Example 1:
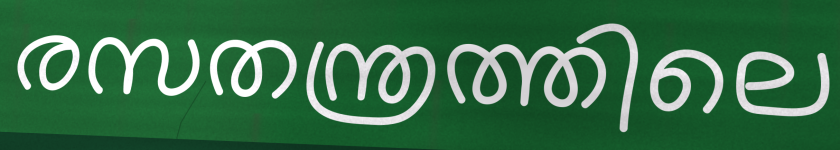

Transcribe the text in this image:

രസതന്ത്രത്തിലെ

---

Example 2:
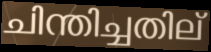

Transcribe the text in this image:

ചിന്തിച്ചതില്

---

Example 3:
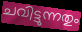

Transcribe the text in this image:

ചവിട്ടുന്നതും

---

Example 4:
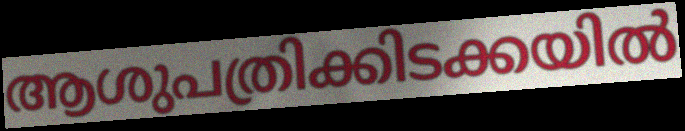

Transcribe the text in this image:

ആശുപത്രിക്കിടക്കയിൽ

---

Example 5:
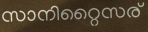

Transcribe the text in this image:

സാനിറ്റൈസര്